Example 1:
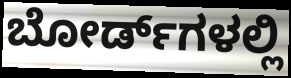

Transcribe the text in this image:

ಬೋರ್ಡ್‌ಗಳಲ್ಲಿ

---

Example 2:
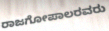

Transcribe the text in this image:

ರಾಜಗೋಪಾಲರವರು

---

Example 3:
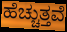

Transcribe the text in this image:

ಹೆಚ್ಚುತ್ತವೆ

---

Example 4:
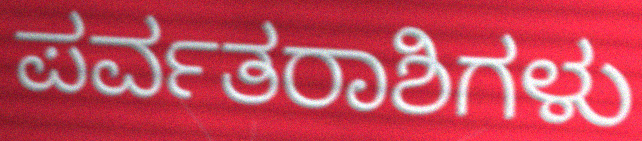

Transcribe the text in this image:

ಪರ್ವತರಾಶಿಗಳು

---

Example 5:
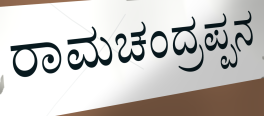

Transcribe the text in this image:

ರಾಮಚಂದ್ರಪ್ಪನ